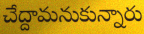
చేద్దామనుకున్నారు